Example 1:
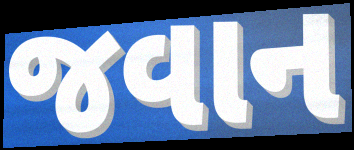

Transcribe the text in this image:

જવાન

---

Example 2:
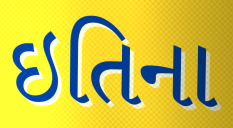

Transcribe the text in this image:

ઇતિના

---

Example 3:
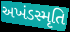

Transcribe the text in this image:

અખંડસ્મૃતિ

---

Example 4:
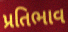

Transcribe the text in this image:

પ્રતિભાવ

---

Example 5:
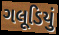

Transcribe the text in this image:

ગલૂડિયું